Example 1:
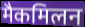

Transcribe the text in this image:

मैकमिलन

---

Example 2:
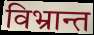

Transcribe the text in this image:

विभ्रान्त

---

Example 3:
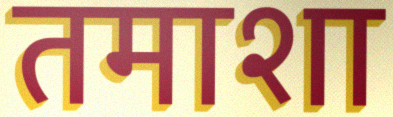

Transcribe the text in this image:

तमाशा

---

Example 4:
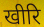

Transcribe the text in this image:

खीरि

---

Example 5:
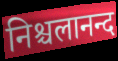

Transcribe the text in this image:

निश्चलानन्द